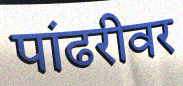
पांढरीवर